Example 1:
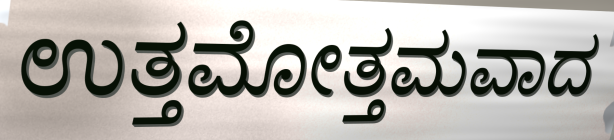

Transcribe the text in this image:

ಉತ್ತಮೋತ್ತಮವಾದ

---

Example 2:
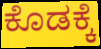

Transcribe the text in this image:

ಕೊಡಕ್ಕೆ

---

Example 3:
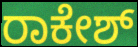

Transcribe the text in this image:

ರಾಕೇಶ್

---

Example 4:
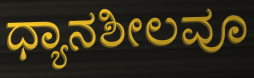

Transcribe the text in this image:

ಧ್ಯಾನಶೀಲವೂ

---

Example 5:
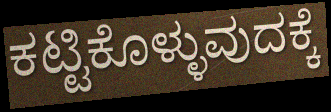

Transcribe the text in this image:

ಕಟ್ಟಿಕೊಳ್ಳುವುದಕ್ಕೆ